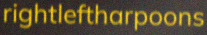
rightleftharpoons